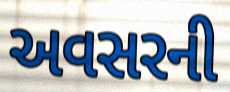
અવસરની